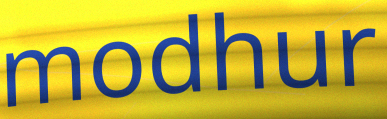
modhur